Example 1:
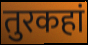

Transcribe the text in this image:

तुरकहां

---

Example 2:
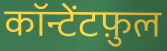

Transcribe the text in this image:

कॉन्टेंटफ़ुल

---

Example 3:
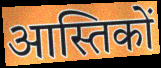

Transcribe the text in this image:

आस्तिकों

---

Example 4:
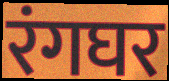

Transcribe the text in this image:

रंगघर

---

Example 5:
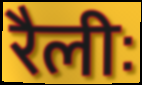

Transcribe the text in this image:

रैलीः